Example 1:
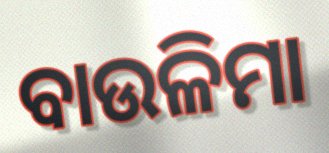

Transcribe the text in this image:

ବାଉଳିମା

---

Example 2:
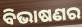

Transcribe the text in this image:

ବିଭାଷଣର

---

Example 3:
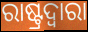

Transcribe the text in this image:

ରାଷ୍ଟ୍ରଦ୍ୱାରା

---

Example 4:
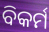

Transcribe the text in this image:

ବିକର୍ମ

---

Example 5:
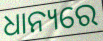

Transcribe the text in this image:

ଧାନ୍ୟରେ